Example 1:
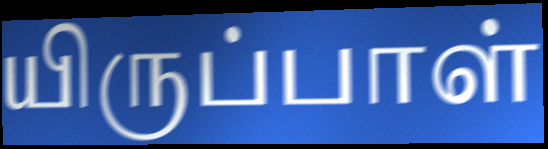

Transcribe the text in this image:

யிருப்பாள்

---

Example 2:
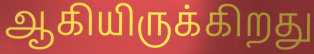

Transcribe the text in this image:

ஆகியிருக்கிறது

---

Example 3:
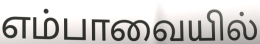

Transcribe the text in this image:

எம்பாவையில்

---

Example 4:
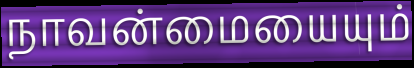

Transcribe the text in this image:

நாவன்மையையும்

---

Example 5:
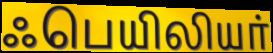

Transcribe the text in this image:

ஃபெயிலியர்